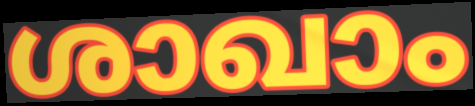
ശാഖാം